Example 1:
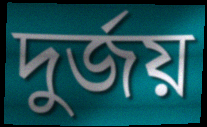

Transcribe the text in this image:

দুৰ্জয়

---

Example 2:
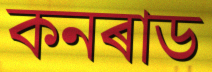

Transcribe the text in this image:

কনৰাড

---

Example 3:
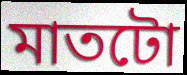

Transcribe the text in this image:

মাতটো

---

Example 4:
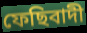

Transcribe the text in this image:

ফেছিবাদী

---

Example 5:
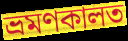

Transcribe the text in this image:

ভ্ৰমণকালত